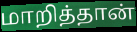
மாறித்தான்